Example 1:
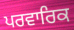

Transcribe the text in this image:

ਪਰਵਾਰਿਕ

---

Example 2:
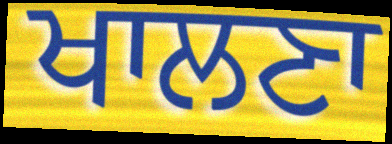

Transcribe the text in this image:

ਖਾਲਣਾ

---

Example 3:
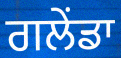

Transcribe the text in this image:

ਗਲੇਂਡਾ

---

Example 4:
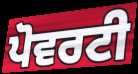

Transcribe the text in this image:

ਪੋਵਰਟੀ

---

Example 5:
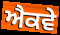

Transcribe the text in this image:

ਐਕਵੇ